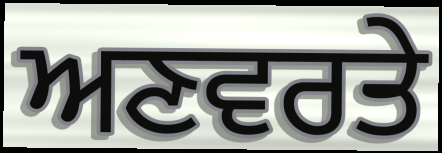
ਅਣਵਰਤੇ